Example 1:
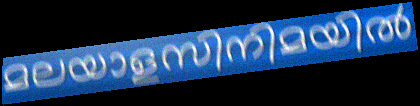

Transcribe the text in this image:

മലയാളസിനിമയിൽ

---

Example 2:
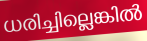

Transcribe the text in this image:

ധരിച്ചില്ലെങ്കിൽ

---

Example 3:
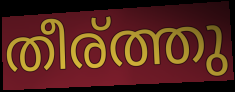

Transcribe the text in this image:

തീര്ത്തു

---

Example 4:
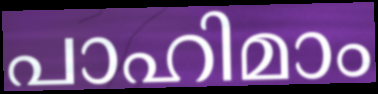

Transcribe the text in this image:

പാഹിമാം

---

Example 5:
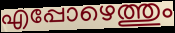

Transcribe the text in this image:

എപ്പോഴെത്തും